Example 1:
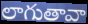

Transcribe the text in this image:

లాగుతావా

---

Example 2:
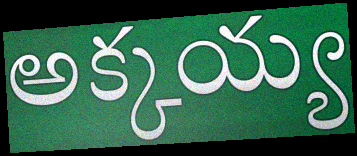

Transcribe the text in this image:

అక్కయ్య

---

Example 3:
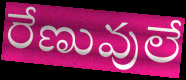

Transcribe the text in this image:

రేణువులే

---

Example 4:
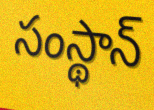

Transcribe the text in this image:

సంస్థాన్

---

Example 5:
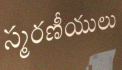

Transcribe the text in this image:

స్మరణీయులు